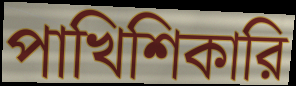
পাখিশিকারি